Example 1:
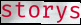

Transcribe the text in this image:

storys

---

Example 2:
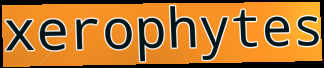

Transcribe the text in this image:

xerophytes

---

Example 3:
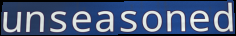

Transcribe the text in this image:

unseasoned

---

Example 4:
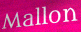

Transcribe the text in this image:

Mallon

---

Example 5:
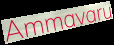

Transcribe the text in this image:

Ammavaru